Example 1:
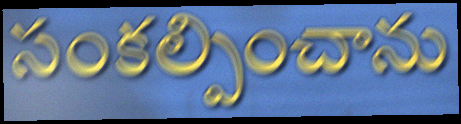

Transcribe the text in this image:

సంకల్పించాను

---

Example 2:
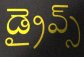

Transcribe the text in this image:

డ్రైవ్స్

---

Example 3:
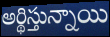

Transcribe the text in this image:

అర్థిస్తున్నాయి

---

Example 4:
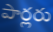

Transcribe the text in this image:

పార్లరు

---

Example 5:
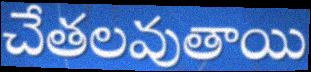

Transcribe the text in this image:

చేతలవుతాయి